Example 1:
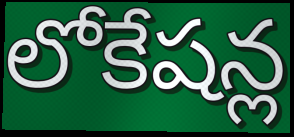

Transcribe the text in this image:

లోకేషన్ల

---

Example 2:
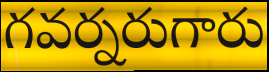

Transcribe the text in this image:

గవర్నరుగారు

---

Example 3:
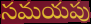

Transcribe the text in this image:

సమయపు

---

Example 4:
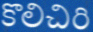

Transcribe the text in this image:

కొలిచిరి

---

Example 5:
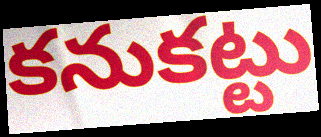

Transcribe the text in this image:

కనుకట్టు